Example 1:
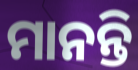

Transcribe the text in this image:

ମାନନ୍ତି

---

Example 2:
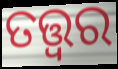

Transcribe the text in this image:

ତତ୍ତ୍ଵର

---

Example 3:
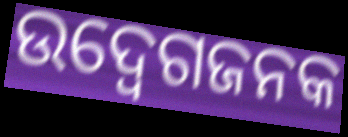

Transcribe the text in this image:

ଉଦ୍ବେଗଜନକ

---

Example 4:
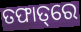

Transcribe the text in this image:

ତଫାତ୍‌ରେ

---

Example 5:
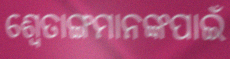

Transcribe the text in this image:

ଶ୍ୱେତାଙ୍ଗମାନଙ୍କପାଇଁ